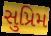
સુપ્રિમ